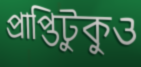
প্রাপ্তিটুকুও